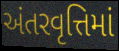
અંતરવૃત્તિમાં